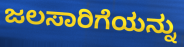
ಜಲಸಾರಿಗೆಯನ್ನು